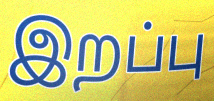
இறப்பு